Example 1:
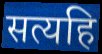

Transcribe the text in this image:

सत्यहि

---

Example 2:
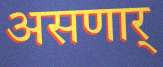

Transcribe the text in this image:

असणार्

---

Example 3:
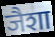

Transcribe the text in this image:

जैशा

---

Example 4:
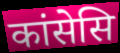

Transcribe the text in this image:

कांसेसि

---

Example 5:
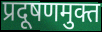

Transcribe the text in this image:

प्रदूषणमुक्त